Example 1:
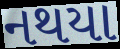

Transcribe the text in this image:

નથયા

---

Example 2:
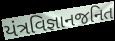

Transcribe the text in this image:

યંત્રવિજ્ઞાનજનિત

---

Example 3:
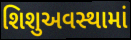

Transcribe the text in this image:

શિશુઅવસ્થામાં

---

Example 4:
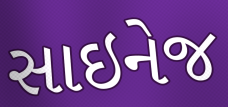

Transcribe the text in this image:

સાઇનેજ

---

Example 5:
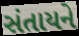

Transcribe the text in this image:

સંતાયને